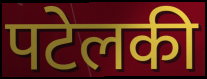
पटेलकी